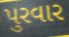
પુરવાર